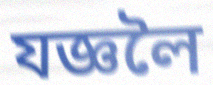
যজ্ঞলৈ